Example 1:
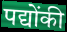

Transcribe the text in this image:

पद्योंकी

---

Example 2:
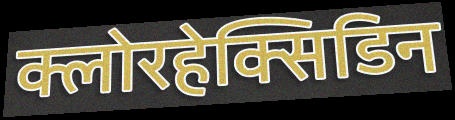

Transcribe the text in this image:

क्लोरहेक्सिडिन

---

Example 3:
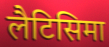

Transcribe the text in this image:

लैटिसिमा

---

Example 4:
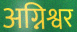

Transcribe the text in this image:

अग्निश्वर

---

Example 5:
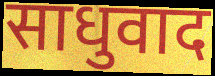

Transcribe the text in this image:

साधुवाद